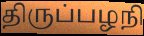
திருப்பழநி